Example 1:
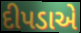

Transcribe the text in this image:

દીપડાએ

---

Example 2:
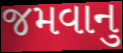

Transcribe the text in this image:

જમવાનુ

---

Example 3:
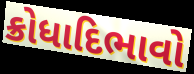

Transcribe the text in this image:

ક્રોધાદિભાવો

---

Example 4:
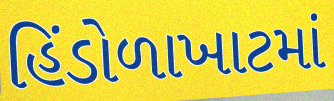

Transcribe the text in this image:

હિંડોળાખાટમાં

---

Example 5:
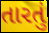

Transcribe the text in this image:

તારતું